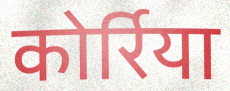
कोर्रिया